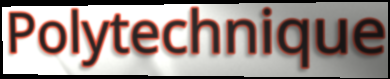
Polytechnique